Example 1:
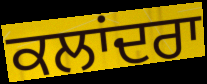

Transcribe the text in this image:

ਕਲਾਂਦਰਾ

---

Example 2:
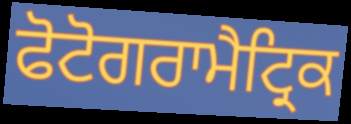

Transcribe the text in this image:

ਫੋਟੋਗਰਾਮੈਟ੍ਰਿਕ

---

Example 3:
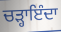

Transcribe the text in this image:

ਚੜ੍ਹਾਇੰਦਾ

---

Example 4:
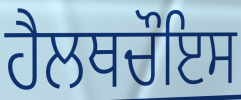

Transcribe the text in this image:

ਹੈਲਥਚੌਇਸ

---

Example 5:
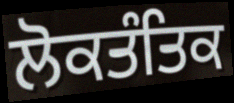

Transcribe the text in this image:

ਲੋਕਤੰਤਿਕ